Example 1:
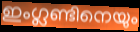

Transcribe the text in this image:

ഇംഗ്ലണ്ടിനെയും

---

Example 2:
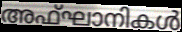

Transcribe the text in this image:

അഫ്ഘാനികൾ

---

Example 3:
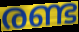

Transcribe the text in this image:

രണ്ട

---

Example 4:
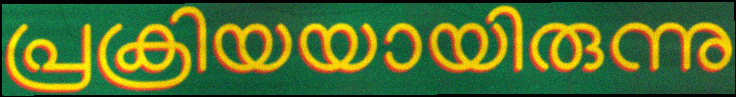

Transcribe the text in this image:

പ്രക്രിയയായിരുന്നു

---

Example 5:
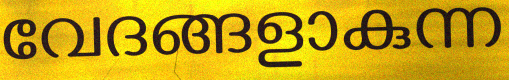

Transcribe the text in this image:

വേദങ്ങളാകുന്ന